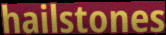
hailstones